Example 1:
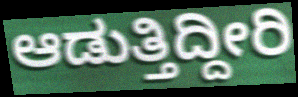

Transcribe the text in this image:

ಆಡುತ್ತಿದ್ದೀರಿ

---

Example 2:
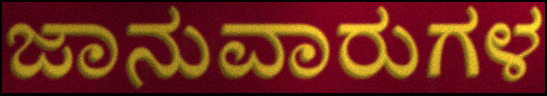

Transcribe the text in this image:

ಜಾನುವಾರುಗಳ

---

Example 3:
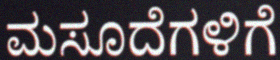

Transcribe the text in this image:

ಮಸೂದೆಗಳಿಗೆ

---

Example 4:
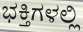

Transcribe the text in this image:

ಭಕ್ತಿಗಳಲ್ಲಿ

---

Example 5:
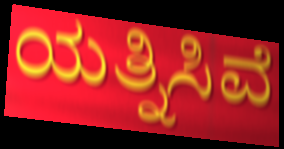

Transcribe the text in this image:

ಯತ್ನಿಸಿವೆ